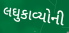
લઘુકાવ્યોની